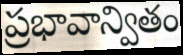
ప్రభావాన్వితం